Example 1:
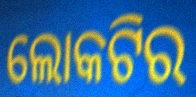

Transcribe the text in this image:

ଲୋକଟିର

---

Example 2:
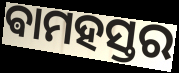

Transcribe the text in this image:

ଵାମହସ୍ତର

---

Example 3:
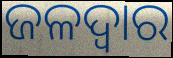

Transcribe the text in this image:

ଜଳଦ୍ୱାର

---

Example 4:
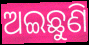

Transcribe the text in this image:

ଅଇଛୁଣି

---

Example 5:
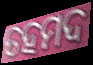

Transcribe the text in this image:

ତହମଦ